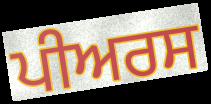
ਪੀਅਰਸ